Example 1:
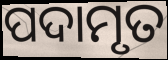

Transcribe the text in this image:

ପଦାମୃତ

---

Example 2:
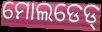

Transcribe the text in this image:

ମୋଲଡେଡ୍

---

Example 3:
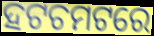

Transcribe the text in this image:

ହଟଚମଟରେ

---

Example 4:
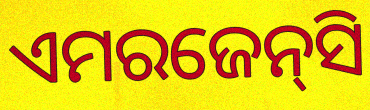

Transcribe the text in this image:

ଏମରଜେନ୍‌ସି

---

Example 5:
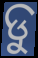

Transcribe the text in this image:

ଡୁ